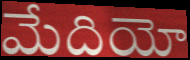
మేదియో